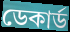
ডেকার্ড